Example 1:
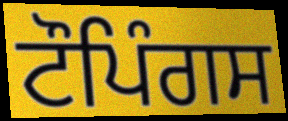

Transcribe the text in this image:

ਟੌਪਿੰਗਸ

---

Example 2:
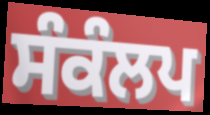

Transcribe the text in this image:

ਸੰਕੰਲਪ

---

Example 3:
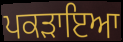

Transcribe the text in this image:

ਪਕੜਾਇਆ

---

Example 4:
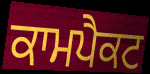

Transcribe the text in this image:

ਕਾਮਪੈਕਟ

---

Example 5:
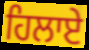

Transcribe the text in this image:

ਹਿਲਾਏ